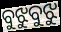
ବୁଝୁବୁଝୁ